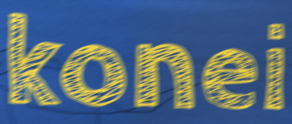
konei